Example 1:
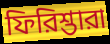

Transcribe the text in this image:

ফিরিশ্তারা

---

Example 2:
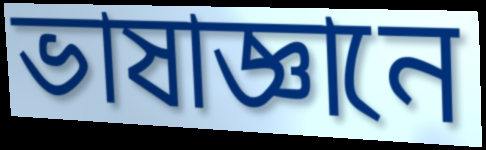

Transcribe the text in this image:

ভাষাজ্ঞানে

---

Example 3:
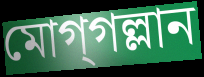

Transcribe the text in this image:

মোগ্‌গল্লান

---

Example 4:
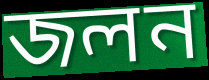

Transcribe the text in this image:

জলন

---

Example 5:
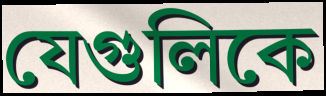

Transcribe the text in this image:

যেগুলিকে